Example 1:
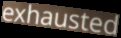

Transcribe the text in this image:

exhausted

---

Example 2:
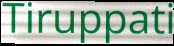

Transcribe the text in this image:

Tiruppati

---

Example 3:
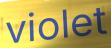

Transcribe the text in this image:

violet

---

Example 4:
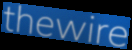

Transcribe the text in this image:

thewire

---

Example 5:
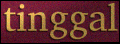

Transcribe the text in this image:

tinggal